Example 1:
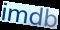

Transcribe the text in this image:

imdb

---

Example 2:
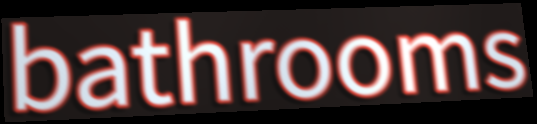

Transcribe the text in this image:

bathrooms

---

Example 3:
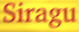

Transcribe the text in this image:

Siragu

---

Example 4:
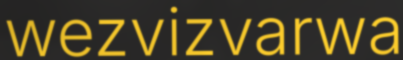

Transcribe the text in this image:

wezvizvarwa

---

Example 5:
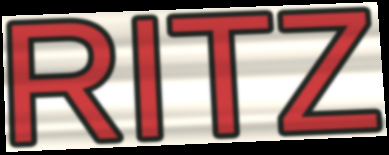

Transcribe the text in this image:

RITZ